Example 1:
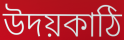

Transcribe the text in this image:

উদয়কাঠি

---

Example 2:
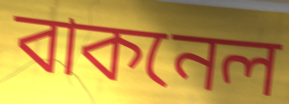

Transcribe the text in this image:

বাকনেল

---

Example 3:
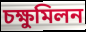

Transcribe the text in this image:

চক্ষুমিলন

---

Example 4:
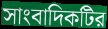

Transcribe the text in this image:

সাংবাদিকটির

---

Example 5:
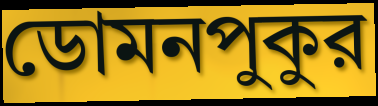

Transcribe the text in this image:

ডোমনপুকুর